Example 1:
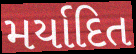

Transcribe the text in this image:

મર્યાદિત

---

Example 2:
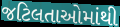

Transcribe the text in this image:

જટિલતાઓમાંથી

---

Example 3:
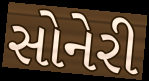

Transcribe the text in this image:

સોનેરી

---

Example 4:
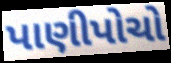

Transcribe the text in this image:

પાણીપોચો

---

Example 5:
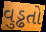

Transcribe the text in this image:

વુડ્ઢતો